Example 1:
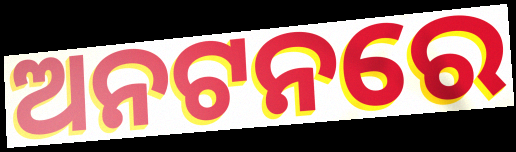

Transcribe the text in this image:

ଅନଟନରେ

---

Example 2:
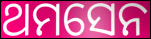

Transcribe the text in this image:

ଥମସେନ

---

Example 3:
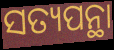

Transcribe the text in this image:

ସତ୍ୟପନ୍ଥା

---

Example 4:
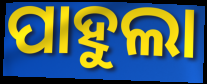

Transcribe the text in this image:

ପାହୁଲା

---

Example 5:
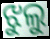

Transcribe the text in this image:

ଝୁଲୁ